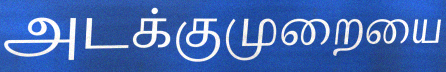
அடக்குமுறையை